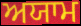
ਅਯਾਮ